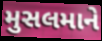
મુસલમાને